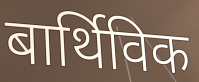
बार्थिविक